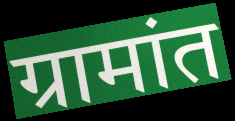
ग्रामांत